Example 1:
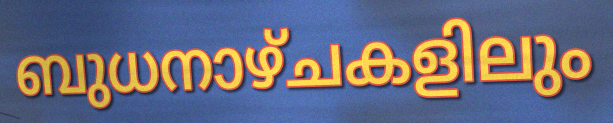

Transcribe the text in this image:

ബുധനാഴ്ചകളിലും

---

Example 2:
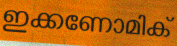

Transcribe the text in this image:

ഇക്കണോമിക്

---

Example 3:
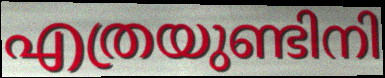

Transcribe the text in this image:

എത്രയുണ്ടിനി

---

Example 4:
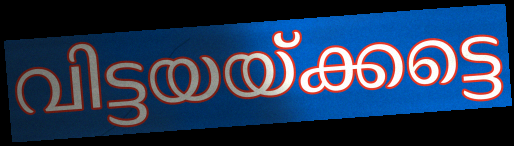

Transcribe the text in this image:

വിട്ടയയ്ക്കട്ടെ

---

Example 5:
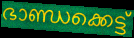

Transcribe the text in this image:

ഭാണ്ഡക്കെട്ട്